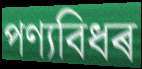
পণ্যবিধৰ